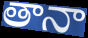
తానా